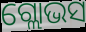
ଗ୍ଲୋଭସ